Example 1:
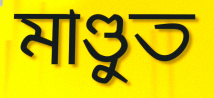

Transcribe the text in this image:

মাণ্ডুত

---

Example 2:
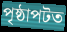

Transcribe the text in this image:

পৃষ্ঠাপটত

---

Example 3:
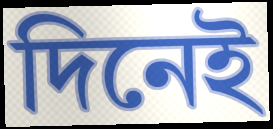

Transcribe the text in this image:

দিনেই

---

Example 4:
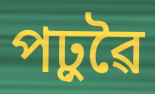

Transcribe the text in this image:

পঢ়ুৱৈ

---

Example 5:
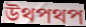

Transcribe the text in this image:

উথপথপ